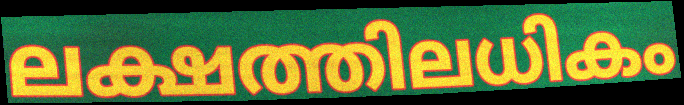
ലക്ഷത്തിലധികം